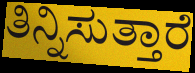
ತಿನ್ನಿಸುತ್ತಾರೆ